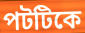
পটটিকে